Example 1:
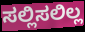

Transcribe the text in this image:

ಸಲ್ಲಿಸಲಿಲ್ಲ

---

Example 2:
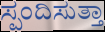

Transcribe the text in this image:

ಸ್ಪಂದಿಸುತ್ತಾ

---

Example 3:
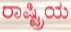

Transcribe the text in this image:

ರಾಷ್ಟ್ರಿಯ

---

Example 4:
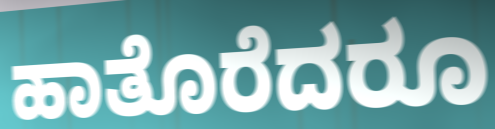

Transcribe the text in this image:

ಹಾತೊರೆದರೂ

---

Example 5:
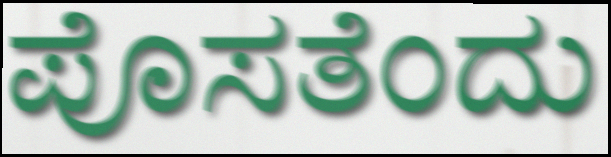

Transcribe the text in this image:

ಪೊಸತೆಂದು